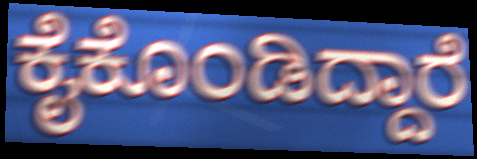
ಕೈಕೊಂಡಿದ್ದಾರೆ